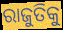
ରାଜୁତିକୁ